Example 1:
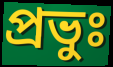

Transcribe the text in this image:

প্রভুঃ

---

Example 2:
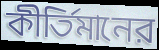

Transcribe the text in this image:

কীর্তিমানের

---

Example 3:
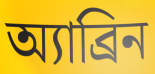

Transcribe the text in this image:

অ্যাব্রিন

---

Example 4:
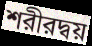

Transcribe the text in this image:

শরীরদ্বয়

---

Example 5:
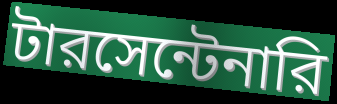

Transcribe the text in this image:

টারসেন্টেনারি